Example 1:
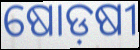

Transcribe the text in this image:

ଷୋଡ଼ଷୀ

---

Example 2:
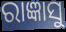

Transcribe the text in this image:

ରାଜ୍ଞାସୁ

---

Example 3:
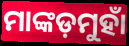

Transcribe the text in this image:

ମାଙ୍କଡ଼ମୁହାଁ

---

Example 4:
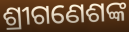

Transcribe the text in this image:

ଶ୍ରୀଗଣେଶଙ୍କ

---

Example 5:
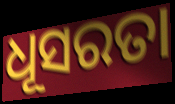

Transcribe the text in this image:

ଧୂସରତା